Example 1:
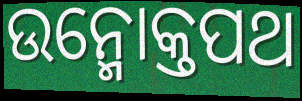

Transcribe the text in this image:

ଉନ୍ମୋକ୍ତପଥ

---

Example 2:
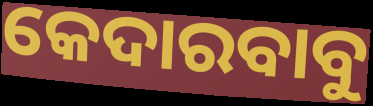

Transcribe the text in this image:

କେଦାରବାବୁ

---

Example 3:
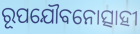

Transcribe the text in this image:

ରୂପଯୌବନୋତ୍ସାହୀ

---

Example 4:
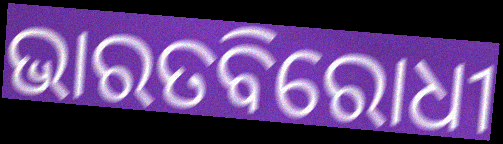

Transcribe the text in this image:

ଭାରତବିରୋଧୀ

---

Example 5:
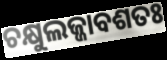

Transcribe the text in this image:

ଚକ୍ଷୁଲଜ୍ଜାବଶତଃ